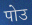
पोउ